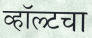
व्हॉल्टचा